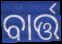
ବାର୍ତ୍ତ